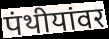
पंथीयांवर